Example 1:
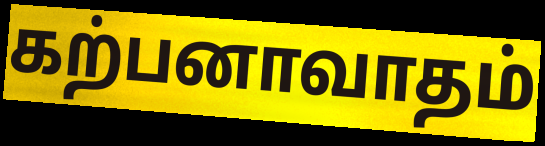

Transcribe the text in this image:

கற்பனாவாதம்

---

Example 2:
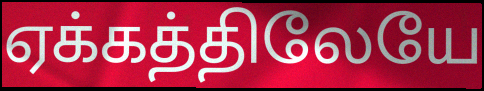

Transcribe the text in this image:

ஏக்கத்திலேயே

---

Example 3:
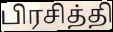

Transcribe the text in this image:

பிரசித்தி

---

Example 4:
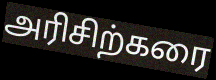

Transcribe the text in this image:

அரிசிற்கரை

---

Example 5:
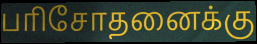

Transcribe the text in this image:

பரிசோதனைக்கு